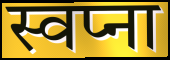
स्‍वप्‍ना